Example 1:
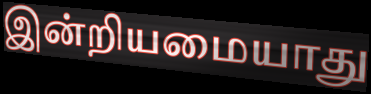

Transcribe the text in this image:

இன்றியமையாது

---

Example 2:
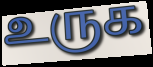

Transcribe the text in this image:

உருக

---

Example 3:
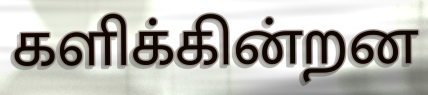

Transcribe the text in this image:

களிக்கின்றன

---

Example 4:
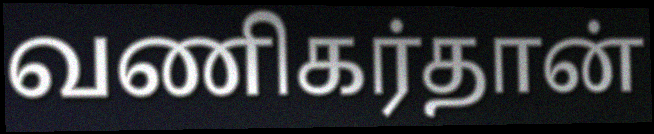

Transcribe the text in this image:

வணிகர்தான்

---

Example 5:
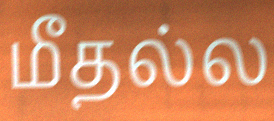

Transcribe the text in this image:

மீதல்ல